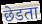
छेडता